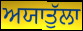
ਅਯਾਤੁੱਲਾ